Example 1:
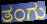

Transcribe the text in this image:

ತಂಗು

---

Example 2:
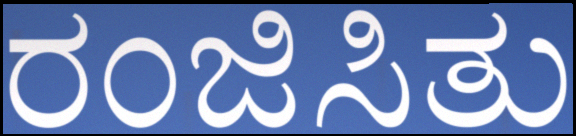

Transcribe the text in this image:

ರಂಜಿಸಿತು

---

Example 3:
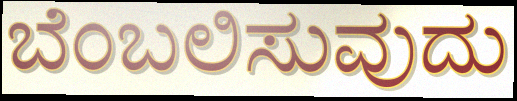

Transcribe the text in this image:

ಬೆಂಬಲಿಸುವುದು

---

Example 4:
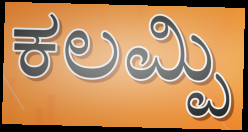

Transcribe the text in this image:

ಕಲಮ್ಪಿ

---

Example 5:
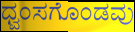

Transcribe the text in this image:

ಧ್ವಂಸಗೊಂಡವು